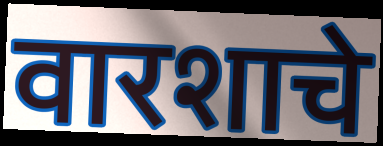
वारशाचे